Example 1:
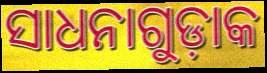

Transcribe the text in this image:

ସାଧନାଗୁଡ଼ାକ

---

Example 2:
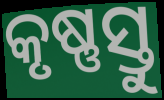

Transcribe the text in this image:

କୃଷ୍ଣସ୍ତୁ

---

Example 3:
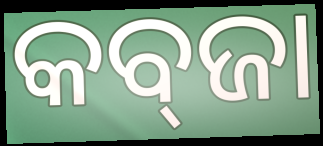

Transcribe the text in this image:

କବ୍‍ଜା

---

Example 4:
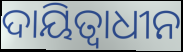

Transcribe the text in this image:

ଦାୟିତ୍ଵାଧୀନ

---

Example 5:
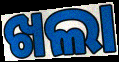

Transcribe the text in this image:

ଖଲା